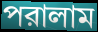
পরালাম